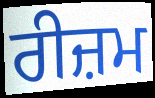
ਰੀਜ਼ਮ